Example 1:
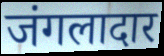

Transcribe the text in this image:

जंगलादार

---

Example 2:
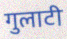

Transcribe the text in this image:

गुलाटी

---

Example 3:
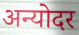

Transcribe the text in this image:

अन्योदर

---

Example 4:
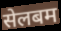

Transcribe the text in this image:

सेलबम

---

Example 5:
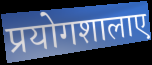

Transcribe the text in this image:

प्रयोगशालाए